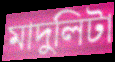
মাদুলিটা